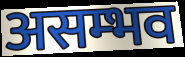
असम्‍भव